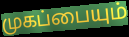
முகப்பையும்